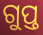
ଗୁପ୍ତ